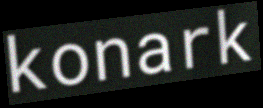
konark